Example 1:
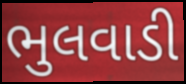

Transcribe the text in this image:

ભુલવાડી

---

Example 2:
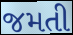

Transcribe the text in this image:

જમતી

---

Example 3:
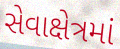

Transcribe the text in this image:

સેવાક્ષેત્રમાં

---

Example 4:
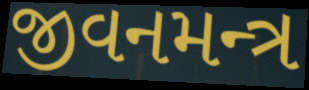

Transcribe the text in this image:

જીવનમન્ત્ર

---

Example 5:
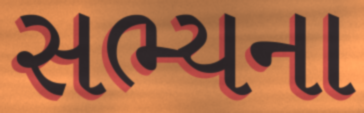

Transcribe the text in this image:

સભ્યના